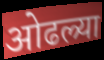
ओढल्या